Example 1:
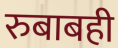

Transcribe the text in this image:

रुबाबही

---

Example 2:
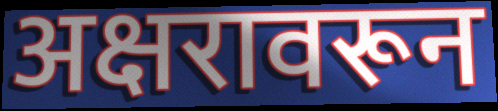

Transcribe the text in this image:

अक्षरावरून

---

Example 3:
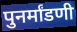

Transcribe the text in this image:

पुनर्मांडणी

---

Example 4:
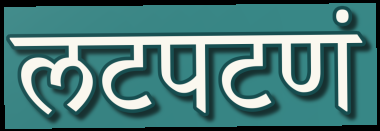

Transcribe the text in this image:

लटपटणं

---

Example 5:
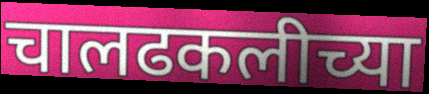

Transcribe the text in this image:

चालढकलीच्या